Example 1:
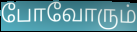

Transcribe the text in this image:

போவோரும்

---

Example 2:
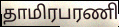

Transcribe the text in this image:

தாமிரபரணி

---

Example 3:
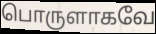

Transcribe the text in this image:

பொருளாகவே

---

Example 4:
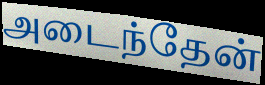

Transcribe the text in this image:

அடைந்தேன்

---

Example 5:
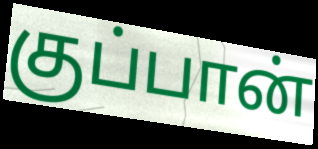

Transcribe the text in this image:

குப்பான்